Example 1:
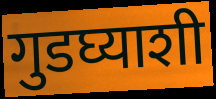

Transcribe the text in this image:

गुडघ्याशी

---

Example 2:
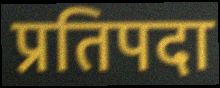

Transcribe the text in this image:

प्रतिपदा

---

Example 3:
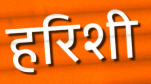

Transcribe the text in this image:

हरिशी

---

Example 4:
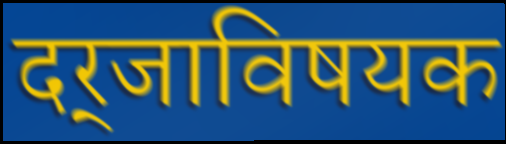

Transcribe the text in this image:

दर्जाविषयक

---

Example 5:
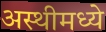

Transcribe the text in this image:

अस्थीमध्ये